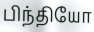
பிந்தியோ